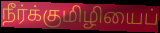
நீர்க்குமிழியைப்